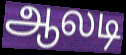
ஆலடி